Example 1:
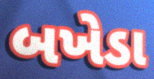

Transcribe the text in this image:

બખેડા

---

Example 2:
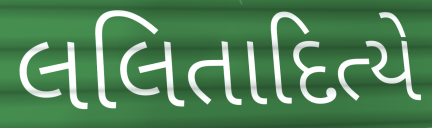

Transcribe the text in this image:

લલિતાદિત્યે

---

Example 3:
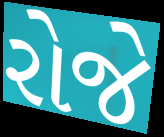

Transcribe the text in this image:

રોજે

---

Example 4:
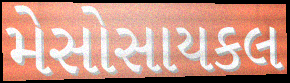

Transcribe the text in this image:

મેસોસાયકલ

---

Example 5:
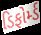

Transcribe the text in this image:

ડિફોર્મ્ડ